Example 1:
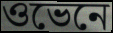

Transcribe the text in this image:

ওভেনে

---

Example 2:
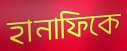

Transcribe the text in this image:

হানাফিকে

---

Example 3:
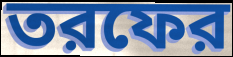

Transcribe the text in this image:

তরফের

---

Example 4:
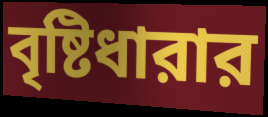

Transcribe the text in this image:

বৃষ্টিধারার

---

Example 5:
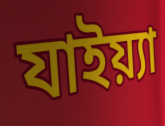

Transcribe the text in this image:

যাইয়্যা